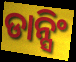
ଡାନ୍ସିଂ